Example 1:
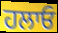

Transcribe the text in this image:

ਹਲਾਓ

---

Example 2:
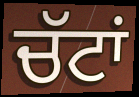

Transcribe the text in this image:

ਚੱਟਾਂ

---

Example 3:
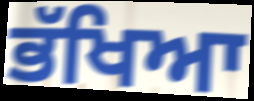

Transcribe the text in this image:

ਭੱਖਿਆ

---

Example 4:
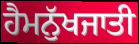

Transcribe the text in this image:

ਹੈਮਨੁੱਖਜਾਤੀ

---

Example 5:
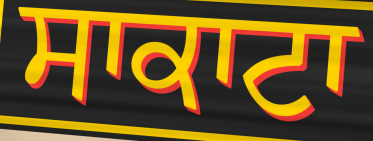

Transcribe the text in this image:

ਸਾਕਾਟਾ